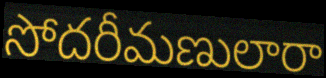
సోదరీమణులారా